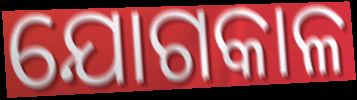
ଯୋଗକାଳ